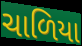
ચાળિયા